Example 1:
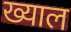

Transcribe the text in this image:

ख्याल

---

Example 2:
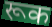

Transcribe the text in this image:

रूक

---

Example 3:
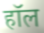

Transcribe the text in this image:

हॉल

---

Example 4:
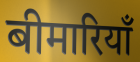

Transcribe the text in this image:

बीमारियाँ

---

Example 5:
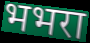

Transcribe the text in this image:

भभरा